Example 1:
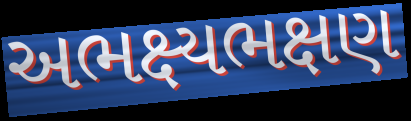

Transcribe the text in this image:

અભક્ષ્યભક્ષણ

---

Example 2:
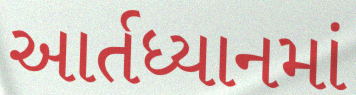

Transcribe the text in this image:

આર્તધ્યાનમાં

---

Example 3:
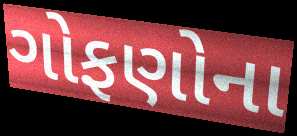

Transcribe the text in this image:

ગોફણોના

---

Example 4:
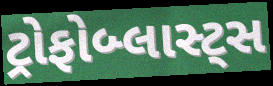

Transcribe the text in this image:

ટ્રોફોબ્લાસ્ટ્સ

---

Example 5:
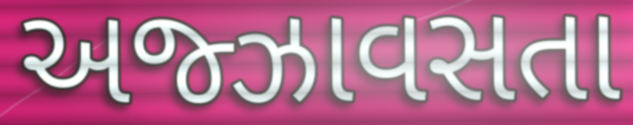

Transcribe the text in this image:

અજ્ઝાવસતા